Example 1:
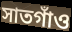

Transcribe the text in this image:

সাতগাঁও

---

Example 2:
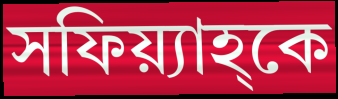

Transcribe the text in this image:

সফিয়্যাহ্কে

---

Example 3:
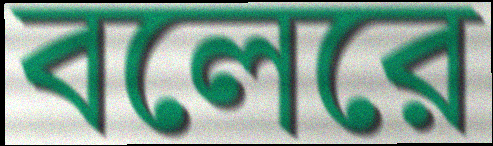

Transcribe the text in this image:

বলেরে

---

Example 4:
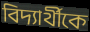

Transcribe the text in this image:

বিদ্যার্থীকে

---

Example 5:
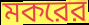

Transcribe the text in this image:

মকরের